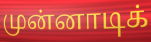
முன்னாடிக்